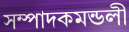
সম্পাদকমন্ডলী